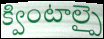
క్వింటాల్పై